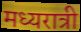
मध्यरात्री